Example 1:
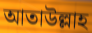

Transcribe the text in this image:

আতাউল্লাহ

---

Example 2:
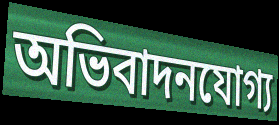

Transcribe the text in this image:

অভিবাদনযোগ্য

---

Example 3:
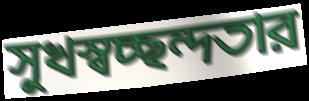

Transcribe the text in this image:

সুখস্বচ্ছন্দতার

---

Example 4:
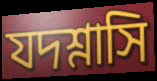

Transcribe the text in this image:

যদশ্নাসি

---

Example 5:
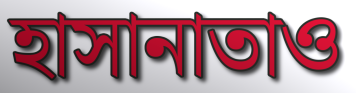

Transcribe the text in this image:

হাসানাতাও